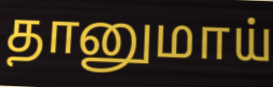
தானுமாய்